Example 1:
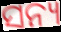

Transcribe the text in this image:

ସନ୍ୟ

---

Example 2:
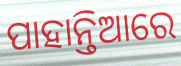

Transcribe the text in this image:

ପାହାନ୍ତିଆରେ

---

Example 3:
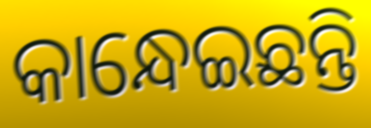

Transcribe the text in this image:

କାନ୍ଧେଇଛନ୍ତି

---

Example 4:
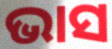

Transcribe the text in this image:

ଭାସ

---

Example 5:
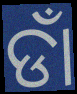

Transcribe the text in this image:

ଡାଁ